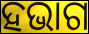
ହଭାଗ